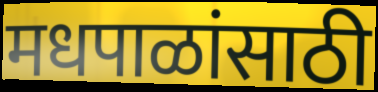
मधपाळांसाठी